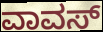
ವಾವಸ್